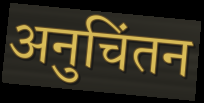
अनुचिंतन